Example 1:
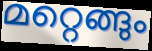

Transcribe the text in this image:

മറ്റെങ്ങും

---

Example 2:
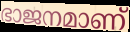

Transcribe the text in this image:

ഭാജനമാണ്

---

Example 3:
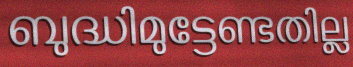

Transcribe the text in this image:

ബുദ്ധിമുട്ടേണ്ടതില്ല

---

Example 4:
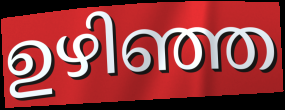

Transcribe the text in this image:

ഉഴിഞ്ഞ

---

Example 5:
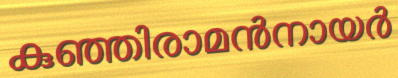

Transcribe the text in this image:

കുഞ്ഞിരാമൻനായർ